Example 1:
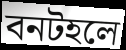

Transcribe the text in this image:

বনটহলে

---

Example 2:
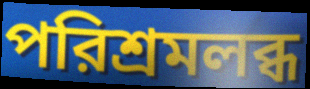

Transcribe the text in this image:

পরিশ্রমলব্ধ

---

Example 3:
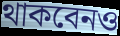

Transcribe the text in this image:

থাকবেনও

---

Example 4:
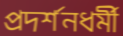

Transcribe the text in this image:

প্রদর্শনধর্মী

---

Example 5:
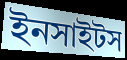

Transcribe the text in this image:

ইনসাইটস